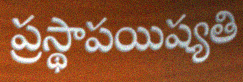
ప్రస్థాపయిష్యతి